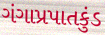
ગંગાપ્રપાતકુંડ